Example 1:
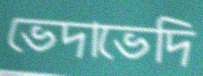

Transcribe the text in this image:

ভেদাভেদি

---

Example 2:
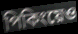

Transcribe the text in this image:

পিকিংয়েও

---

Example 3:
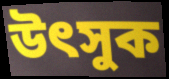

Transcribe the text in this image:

উৎসুক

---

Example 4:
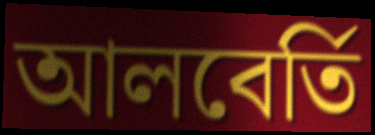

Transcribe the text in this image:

আলবের্তি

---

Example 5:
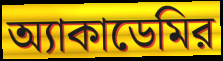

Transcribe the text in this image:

অ্যাকাডেমির